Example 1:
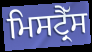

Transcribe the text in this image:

ਮਿਸਟ੍ਰੈੱਸ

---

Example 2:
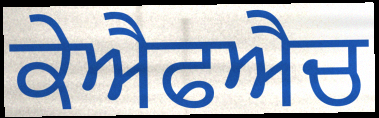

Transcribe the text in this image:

ਕੇਐਫਐਚ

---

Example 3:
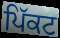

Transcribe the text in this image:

ਪਿੱਕਟ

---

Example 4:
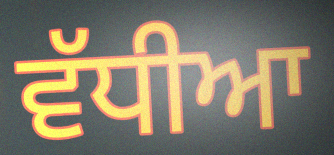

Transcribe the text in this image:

ਵੱਧੀਆ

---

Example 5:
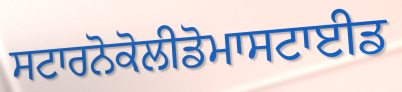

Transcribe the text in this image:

ਸਟਾਰਨੋਕੋਲੀਡੋਮਾਸਟਾਈਡ